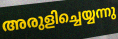
അരുളിച്ചെയ്യന്നു